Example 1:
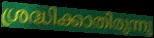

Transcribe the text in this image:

ശ്രദ്ധിക്കാതിരുന്നു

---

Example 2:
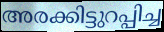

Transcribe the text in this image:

അരക്കിട്ടുറപ്പിച്ച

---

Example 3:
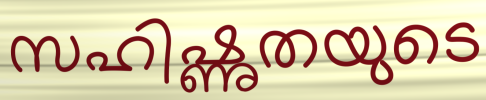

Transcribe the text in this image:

സഹിഷ്ണുതയുടെ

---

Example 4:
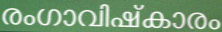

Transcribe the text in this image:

രംഗാവിഷ്‌കാരം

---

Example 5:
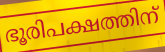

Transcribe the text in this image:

ഭൂരിപക്ഷത്തിന്